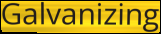
Galvanizing